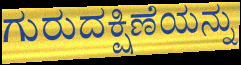
ಗುರುದಕ್ಷಿಣೆಯನ್ನು